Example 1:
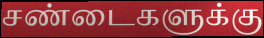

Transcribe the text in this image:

சண்டைகளுக்கு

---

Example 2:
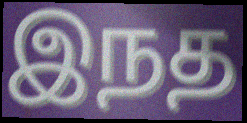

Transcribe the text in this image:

இநத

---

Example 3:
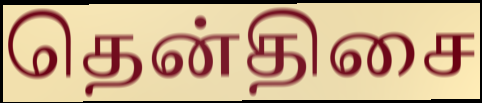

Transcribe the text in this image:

தென்திசை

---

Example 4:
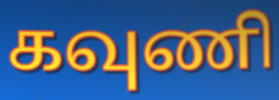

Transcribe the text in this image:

கவுணி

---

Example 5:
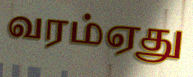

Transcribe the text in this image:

வரம்ஏது